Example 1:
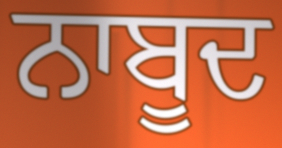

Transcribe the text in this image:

ਨਾਬੂਦ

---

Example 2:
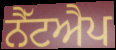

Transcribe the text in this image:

ਨੈੱਟਐਪ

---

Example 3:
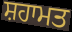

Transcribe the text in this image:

ਸ਼ਹਾਮਤ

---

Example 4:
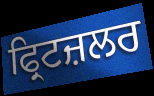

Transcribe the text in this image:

ਫ੍ਰਿਟਜ਼ਲਰ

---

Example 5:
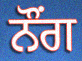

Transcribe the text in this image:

ਨੌਂਗ